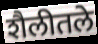
शैलीतले